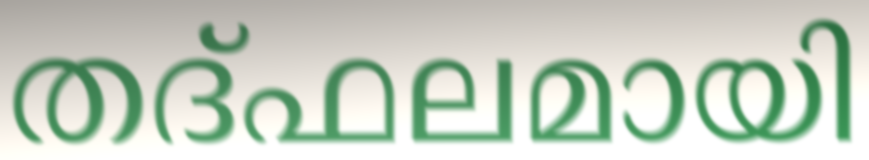
തദ്ഫലമായി